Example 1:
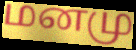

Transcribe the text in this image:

மனமு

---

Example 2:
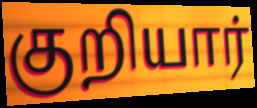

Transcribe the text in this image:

குறியார்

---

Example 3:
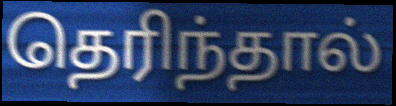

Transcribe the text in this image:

தெரிந்தால்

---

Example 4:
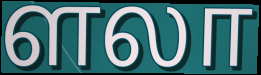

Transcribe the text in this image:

ளலா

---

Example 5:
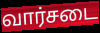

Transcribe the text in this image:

வார்சடை